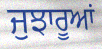
ਜੁਝਾਰੂਆਂ